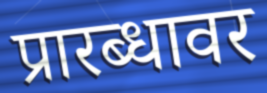
प्रारब्धावर